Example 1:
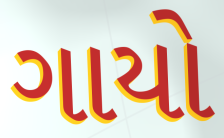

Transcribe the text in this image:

ગાયો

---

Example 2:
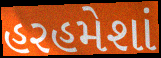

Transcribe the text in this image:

હરહમેશાં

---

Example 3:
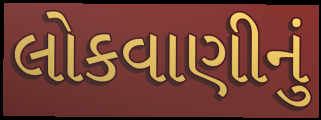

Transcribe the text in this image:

લોકવાણીનું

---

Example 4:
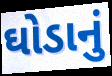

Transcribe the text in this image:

ઘોડાનું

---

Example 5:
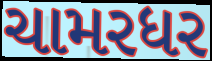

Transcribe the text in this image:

ચામરધર